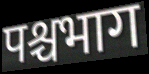
पश्चभाग